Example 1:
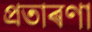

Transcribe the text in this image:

প্ৰতাৰণা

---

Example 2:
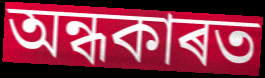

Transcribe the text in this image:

অন্ধকাৰত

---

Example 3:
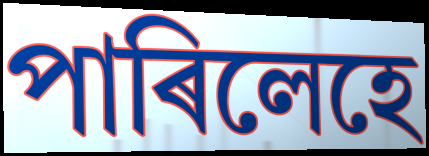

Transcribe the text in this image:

পাৰিলেহে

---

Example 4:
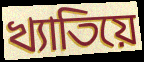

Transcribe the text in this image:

খ্যাতিয়ে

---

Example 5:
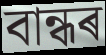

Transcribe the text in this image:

বান্ধৰ